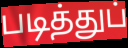
படித்துப்